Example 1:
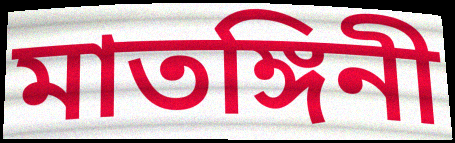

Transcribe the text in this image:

মাতঙ্গিনী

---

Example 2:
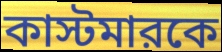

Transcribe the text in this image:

কাস্টমারকে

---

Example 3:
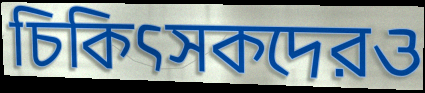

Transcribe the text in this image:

চিকিৎসকদেরও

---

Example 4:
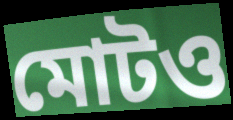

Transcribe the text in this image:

মোটও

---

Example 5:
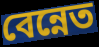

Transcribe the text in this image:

বেন্নেত